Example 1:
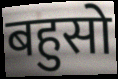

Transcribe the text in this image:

बहुसो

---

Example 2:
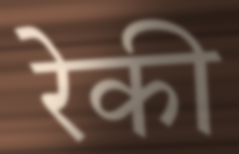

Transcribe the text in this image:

रेकी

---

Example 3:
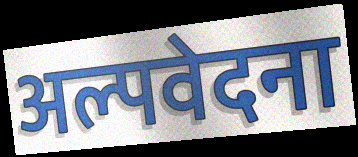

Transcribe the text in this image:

अल्पवेदना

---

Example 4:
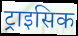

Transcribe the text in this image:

ट्राइसिक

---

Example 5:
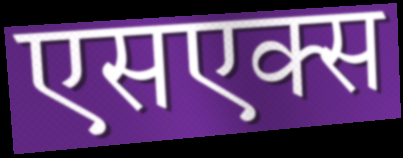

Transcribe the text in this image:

एसएक्स